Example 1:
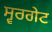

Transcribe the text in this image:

ਸ੍ਵਰਗੇਟ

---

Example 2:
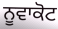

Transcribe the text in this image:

ਨੂਵਾਕੋਟ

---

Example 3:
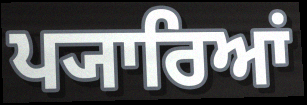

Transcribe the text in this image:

ਪ੍ਯਾਰਿਆਂ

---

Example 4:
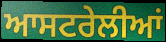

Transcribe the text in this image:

ਆਸਟਰੇਲੀਆਂ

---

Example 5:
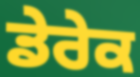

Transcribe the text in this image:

ਡੇਰੇਕ